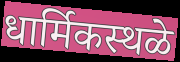
धार्मिकस्थळे